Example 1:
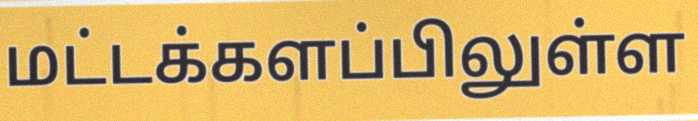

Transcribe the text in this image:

மட்டக்களப்பிலுள்ள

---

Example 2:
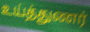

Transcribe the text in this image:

உய்த்துணர்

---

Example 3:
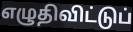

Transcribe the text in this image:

எழுதிவிட்டுப்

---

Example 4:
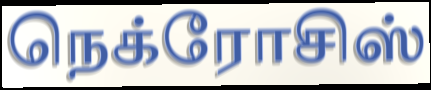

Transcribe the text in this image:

நெக்ரோசிஸ்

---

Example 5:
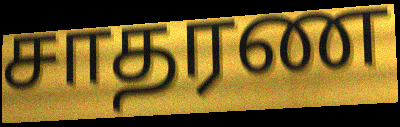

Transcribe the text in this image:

சாதரண